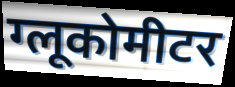
ग्लूकोमीटर